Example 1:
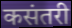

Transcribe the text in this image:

कसंतरी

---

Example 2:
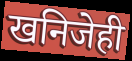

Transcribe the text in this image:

खनिजेही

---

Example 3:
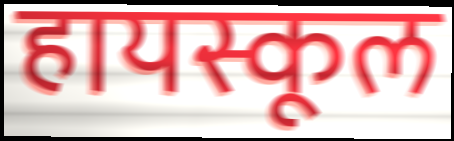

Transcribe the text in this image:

हायस्‍कूल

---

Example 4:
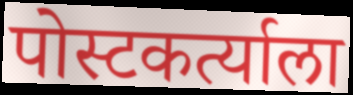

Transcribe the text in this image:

पोस्टकर्त्याला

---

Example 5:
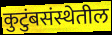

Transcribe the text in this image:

कुटुंबसंस्थेतील